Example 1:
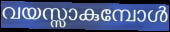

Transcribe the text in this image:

വയസ്സാകുമ്പോൾ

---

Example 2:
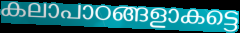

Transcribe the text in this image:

കലാപാഠങ്ങളാകട്ടെ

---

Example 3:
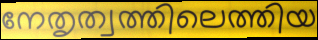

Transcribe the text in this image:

നേതൃത്വത്തിലെത്തിയ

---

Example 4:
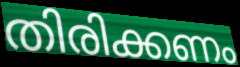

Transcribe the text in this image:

തിരിക്കണം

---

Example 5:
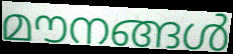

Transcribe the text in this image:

മൗനങ്ങൾ